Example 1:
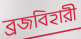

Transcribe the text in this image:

ব্রজবিহারী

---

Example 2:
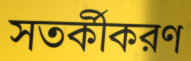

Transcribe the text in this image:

সতর্কীকরণ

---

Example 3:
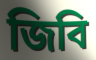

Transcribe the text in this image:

জিবি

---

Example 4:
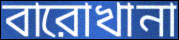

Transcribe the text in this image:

বারোখানা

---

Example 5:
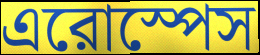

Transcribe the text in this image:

এরোস্পেস